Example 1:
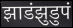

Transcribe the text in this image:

झाडंझुडुपं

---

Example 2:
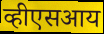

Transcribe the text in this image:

व्हीएसआय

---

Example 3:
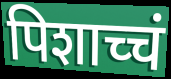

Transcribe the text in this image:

पिशाच्चं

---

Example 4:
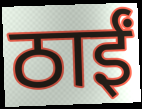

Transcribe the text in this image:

ठाईं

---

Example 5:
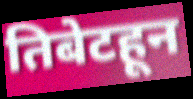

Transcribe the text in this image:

तिबेटहून